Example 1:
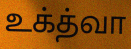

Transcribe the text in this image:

உக்த்வா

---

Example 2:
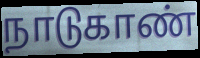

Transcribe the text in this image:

நாடுகாண்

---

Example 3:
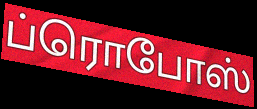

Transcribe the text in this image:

ப்ரொபோஸ்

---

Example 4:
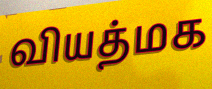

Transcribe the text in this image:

வியத்மக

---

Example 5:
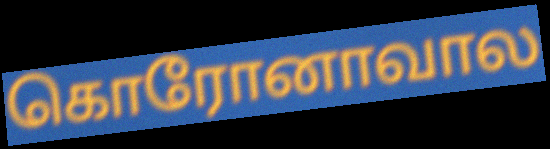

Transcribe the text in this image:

கொரோனாவால